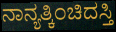
ನಾನ್ಯತ್ಕಿಂಚಿದಸ್ತಿ